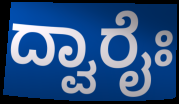
ದ್ವಾರೈಃ